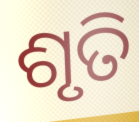
ଶୃତି